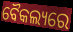
ବୈକଲ୍ୟରେ